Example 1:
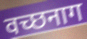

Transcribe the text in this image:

वच्छनाग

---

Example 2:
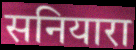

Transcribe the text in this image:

सनियारा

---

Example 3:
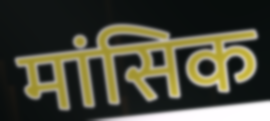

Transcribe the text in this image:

मांसिक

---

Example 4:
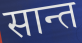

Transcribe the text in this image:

सान्त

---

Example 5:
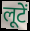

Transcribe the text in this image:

लूटें